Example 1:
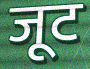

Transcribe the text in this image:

जूट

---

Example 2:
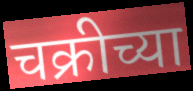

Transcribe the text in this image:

चक्रीच्या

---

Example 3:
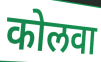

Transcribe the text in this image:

कोलवा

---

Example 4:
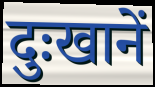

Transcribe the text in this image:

दुःखानें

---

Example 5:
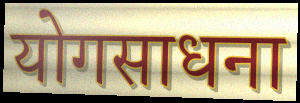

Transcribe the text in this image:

योगसाधना